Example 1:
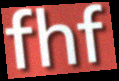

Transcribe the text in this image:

fhf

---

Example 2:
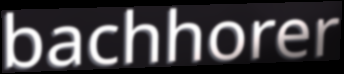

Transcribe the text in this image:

bachhorer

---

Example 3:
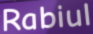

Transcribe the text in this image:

Rabiul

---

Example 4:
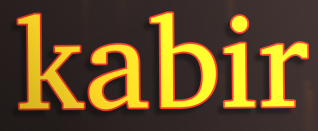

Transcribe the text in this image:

kabir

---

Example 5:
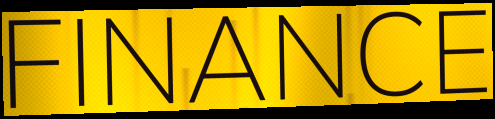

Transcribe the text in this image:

FINANCE